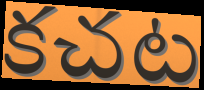
కచట